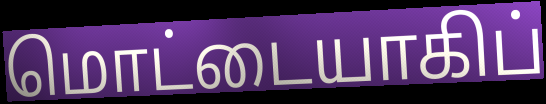
மொட்டையாகிப்